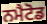
ਨਮੈਟੋਡ